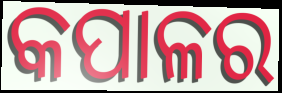
କପାଳର